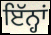
ਇੱਨ੍ਹਾਂ